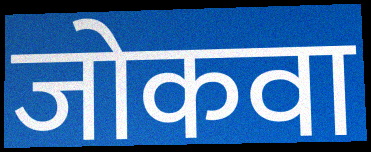
जोकवा